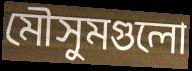
মৌসুমগুলো